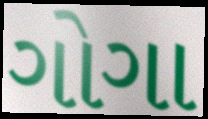
ગોગા